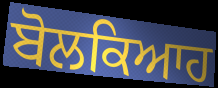
ਬੋਲਕਿਆਹ